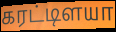
கரட்டிளயா